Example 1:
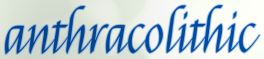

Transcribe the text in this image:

anthracolithic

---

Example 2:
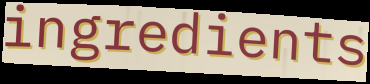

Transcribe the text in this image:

ingredients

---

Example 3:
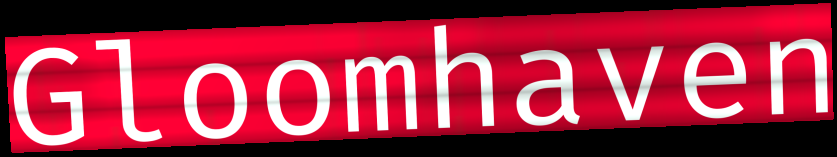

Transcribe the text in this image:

Gloomhaven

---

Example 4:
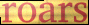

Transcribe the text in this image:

roars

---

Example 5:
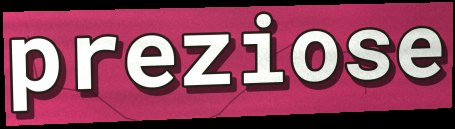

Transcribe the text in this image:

preziose